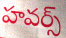
హవర్స్